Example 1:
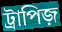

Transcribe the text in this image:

ট্রাপিজ়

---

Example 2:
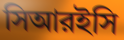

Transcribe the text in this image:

সিআরইসি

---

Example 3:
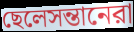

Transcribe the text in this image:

ছেলেসন্তানেরা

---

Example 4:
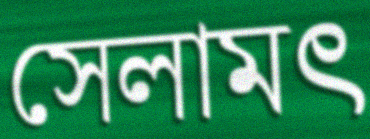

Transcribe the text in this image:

সেলামৎ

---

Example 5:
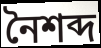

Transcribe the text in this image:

নৈশব্দ